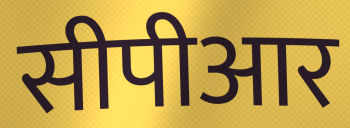
सीपीआर